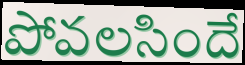
పోవలసిందే